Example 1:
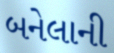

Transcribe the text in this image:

બનેલાની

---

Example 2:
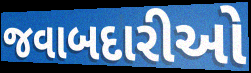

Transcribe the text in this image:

જવાબદારીઓ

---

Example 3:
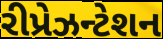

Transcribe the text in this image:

રીપ્રેઝન્ટેશન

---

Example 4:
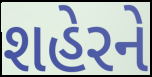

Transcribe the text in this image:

શહેરને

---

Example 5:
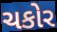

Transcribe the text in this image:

ચકોર